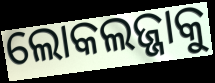
ଲୋକଲଜ୍ଜାକୁ